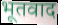
भूतवाद